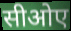
सीओए